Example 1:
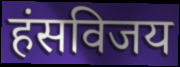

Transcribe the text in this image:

हंसविजय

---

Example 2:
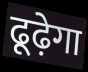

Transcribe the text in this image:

ढूढ़ेगा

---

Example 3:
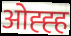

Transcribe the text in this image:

ओह्ह्ह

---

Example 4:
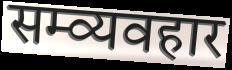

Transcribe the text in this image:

सम्व्यवहार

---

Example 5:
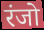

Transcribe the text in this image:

रंजो